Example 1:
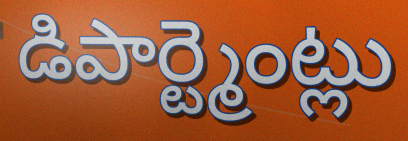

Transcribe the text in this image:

డిపార్ట్మెంట్లు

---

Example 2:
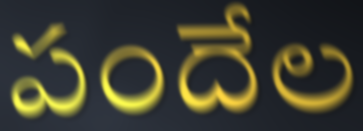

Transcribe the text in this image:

పందేల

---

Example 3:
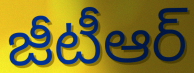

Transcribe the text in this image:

జీటీఆర్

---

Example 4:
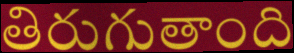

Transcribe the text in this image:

తిరుగుతాంది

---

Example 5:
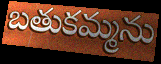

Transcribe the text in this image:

బతుకమ్మను